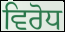
ਵਿਰੋਧ